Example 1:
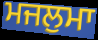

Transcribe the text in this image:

ਮਜਲੁਮਾ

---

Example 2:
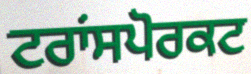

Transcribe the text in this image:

ਟਰਾਂਸਪੋਰਕਟ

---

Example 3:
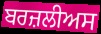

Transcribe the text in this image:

ਬਰਜ਼ਲੀਅਸ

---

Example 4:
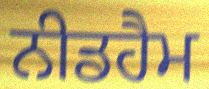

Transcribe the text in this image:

ਨੀਡਹੈਮ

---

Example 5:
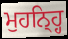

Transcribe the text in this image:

ਮੁਹਨ੍ਹ੍ਹਿ